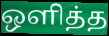
ஒளித்த